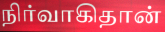
நிர்வாகிதான்